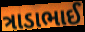
ત્રાડાભાઈ